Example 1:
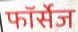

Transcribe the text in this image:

फॉर्सेज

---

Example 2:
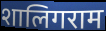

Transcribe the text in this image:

शालिगराम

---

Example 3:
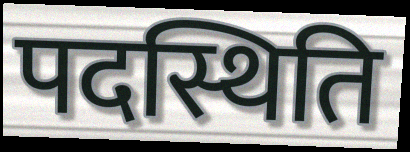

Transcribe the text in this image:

पदस्थिति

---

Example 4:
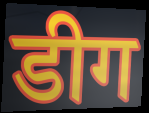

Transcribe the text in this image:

डीग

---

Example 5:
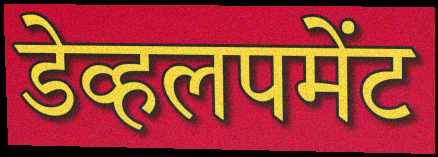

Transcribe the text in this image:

डेव्हलपमेंट